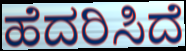
ಹೆದರಿಸಿದೆ